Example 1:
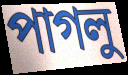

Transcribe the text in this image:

পাগলু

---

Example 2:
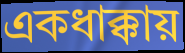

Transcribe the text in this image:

একধাক্কায়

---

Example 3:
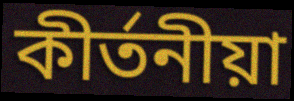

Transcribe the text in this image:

কীর্তনীয়া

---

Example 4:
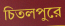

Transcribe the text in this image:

চিতলপুরে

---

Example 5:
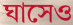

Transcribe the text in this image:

ঘাসেও